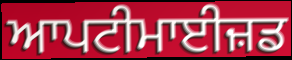
ਆਪਟੀਮਾਈਜ਼ਡ